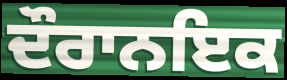
ਦੌਰਾਨਇਕ